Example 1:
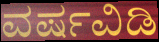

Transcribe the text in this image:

ವರ್ಷವಿಡಿ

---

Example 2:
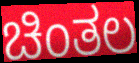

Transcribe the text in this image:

ಚಿಂತಲ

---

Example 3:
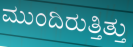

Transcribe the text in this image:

ಮುಂದಿರುತ್ತಿತ್ತು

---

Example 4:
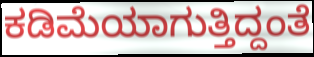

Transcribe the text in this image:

ಕಡಿಮೆಯಾಗುತ್ತಿದ್ದಂತೆ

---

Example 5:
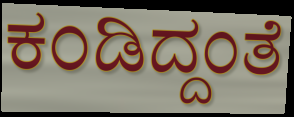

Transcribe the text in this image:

ಕಂಡಿದ್ದಂತೆ